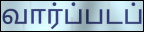
வார்ப்படப்